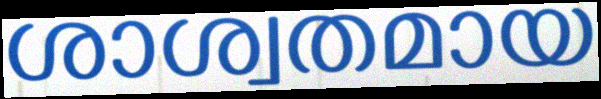
ശാശ്വതമായ